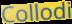
Collodi